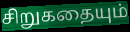
சிறுகதையும்